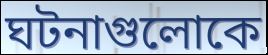
ঘটনাগুলোকে